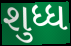
શુધ્ધ